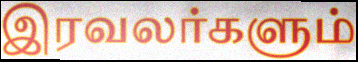
இரவலர்களும்